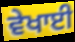
ਵੇਖਾਈ